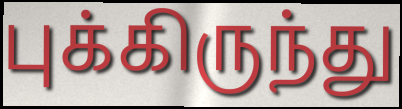
புக்கிருந்து